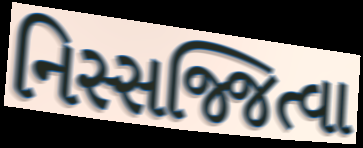
નિસ્સજ્જિત્વા